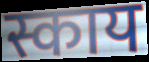
स्काय